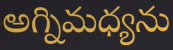
అగ్నిమధ్యను